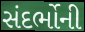
સંદર્ભોની